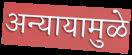
अन्यायामुळे